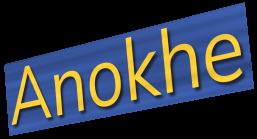
Anokhe